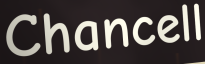
Chancell